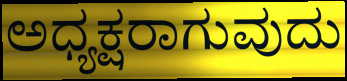
ಅಧ್ಯಕ್ಷರಾಗುವುದು